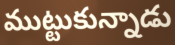
ముట్టుకున్నాడు